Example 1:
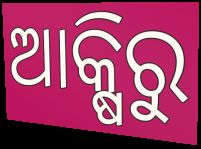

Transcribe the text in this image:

ଆକ୍ଷିରୁ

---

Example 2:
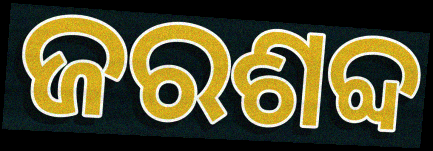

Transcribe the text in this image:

ଜରଶବ୍ଦ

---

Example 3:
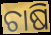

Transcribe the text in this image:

ଚାଷି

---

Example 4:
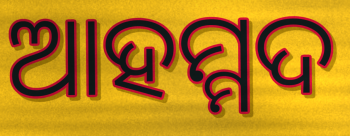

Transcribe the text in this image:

ଆହମ୍ମଦ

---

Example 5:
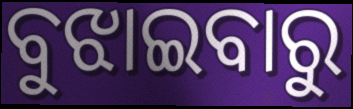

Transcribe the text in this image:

ବୁଝାଇବାରୁ